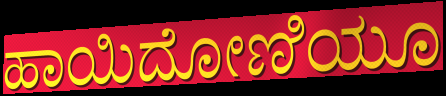
ಹಾಯಿದೋಣಿಯೂ